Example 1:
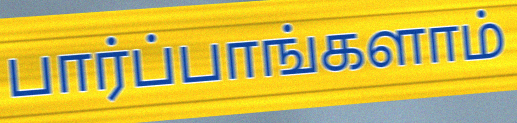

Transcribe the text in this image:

பார்ப்பாங்களாம்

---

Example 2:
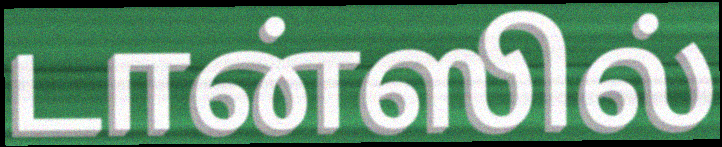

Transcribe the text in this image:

டான்ஸில்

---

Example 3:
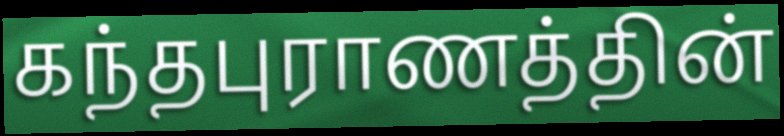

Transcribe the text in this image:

கந்தபுராணத்தின்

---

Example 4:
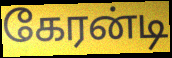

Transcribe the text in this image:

கேரன்டி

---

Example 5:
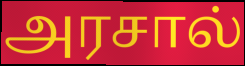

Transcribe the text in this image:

அரசால்